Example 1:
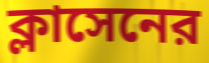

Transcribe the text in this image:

ক্লাসেনের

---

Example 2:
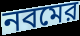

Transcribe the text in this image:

নবমের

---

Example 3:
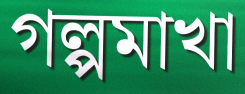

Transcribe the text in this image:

গল্পমাখা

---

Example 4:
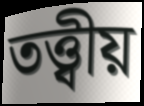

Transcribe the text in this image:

তত্ত্বীয়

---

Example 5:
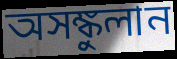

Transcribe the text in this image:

অসঙ্কুলান